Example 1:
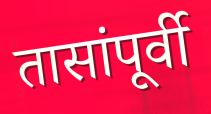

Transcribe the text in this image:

तासांपूर्वी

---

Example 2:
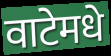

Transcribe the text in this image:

वाटेमधे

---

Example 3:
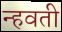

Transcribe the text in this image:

न्हवती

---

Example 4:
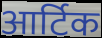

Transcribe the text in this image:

आर्टिक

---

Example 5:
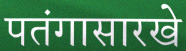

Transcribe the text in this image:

पतंगासारखे